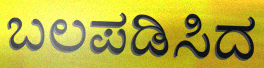
ಬಲಪಡಿಸಿದ